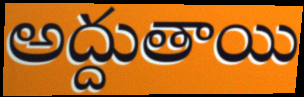
అద్దుతాయి